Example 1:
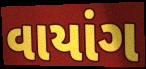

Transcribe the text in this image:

વાયાંગ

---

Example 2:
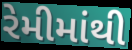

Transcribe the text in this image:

રેમીમાંથી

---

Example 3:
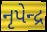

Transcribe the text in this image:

નૃપેન્દ્ર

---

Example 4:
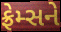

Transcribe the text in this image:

ફ્રેમ્સને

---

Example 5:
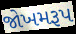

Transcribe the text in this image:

જોખમરૂપ